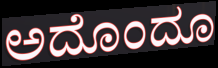
ಅದೊಂದೂ